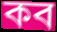
কব